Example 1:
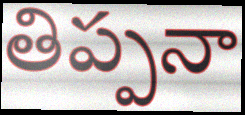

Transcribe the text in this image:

తిప్పనా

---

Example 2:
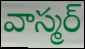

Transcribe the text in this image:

వాస్మర్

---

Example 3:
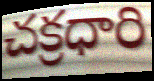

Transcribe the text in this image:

చక్రధారి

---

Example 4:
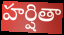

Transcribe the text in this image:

హర్షితా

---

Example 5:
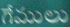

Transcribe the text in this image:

గేములు